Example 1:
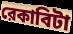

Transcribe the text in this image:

রেকাবিটা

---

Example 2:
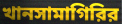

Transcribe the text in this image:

খানসামাগিরির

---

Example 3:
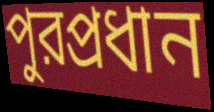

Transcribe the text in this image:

পুরপ্রধান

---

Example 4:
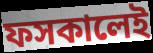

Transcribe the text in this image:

ফসকালেই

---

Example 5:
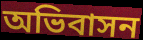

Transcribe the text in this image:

অভিবাসন